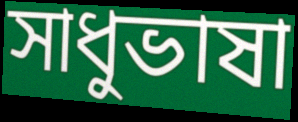
সাধুভাষা